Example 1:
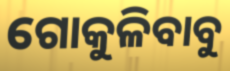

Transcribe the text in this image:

ଗୋକୁଳିବାବୁ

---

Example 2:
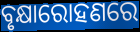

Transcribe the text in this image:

ବୃକ୍ଷାରୋହଣରେ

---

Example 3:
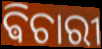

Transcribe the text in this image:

ଵିଚାରୀ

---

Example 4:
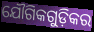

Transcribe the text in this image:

ଯୌଗିକଗୁଡ଼ିକର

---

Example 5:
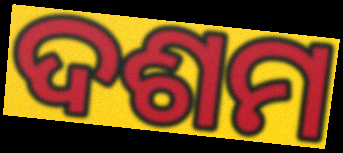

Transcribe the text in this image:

ଦଶମ